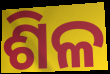
ଶିଳ